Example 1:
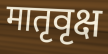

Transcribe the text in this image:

मातृवृक्ष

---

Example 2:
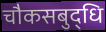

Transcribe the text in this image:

चौकसबुद्धि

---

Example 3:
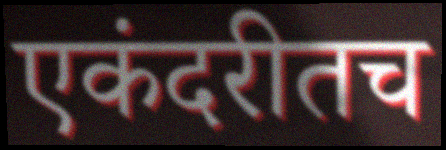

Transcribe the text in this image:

एकंदरीतच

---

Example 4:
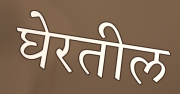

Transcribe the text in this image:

घेरतील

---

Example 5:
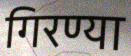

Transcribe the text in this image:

गिरण्या